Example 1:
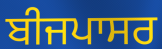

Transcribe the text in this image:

ਬੀਜਪਾਸਰ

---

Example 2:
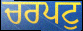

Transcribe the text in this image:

ਚਰਪਟੁ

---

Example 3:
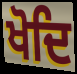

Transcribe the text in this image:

ਖੋਦਿ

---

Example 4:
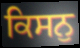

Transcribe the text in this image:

ਕਿਸਨੁ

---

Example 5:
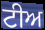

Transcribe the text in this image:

ਟੀਅ